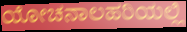
ಯೋಚನಾಲಹರಿಯಲ್ಲಿ